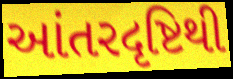
આંતરદૃષ્ટિથી